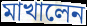
মাখালেন